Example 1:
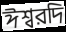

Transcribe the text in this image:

ঈশ্বরদি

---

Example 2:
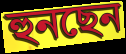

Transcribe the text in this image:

হুনছেন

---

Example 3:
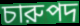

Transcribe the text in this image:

চারুপদ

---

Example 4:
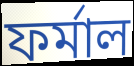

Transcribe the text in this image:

ফর্মাল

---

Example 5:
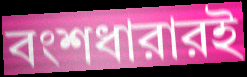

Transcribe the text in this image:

বংশধারারই